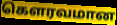
கெளரவமான